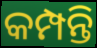
କମ୍ପନ୍ତି